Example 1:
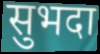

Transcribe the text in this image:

सुभदा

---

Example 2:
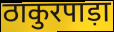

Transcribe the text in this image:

ठाकुरपाड़ा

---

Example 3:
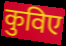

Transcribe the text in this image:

कुविए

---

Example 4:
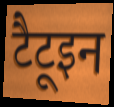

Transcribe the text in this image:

टैटूइन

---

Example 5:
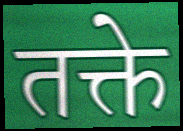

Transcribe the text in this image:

तक्ते